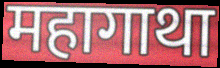
महागाथा